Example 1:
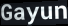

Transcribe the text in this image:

Gayun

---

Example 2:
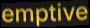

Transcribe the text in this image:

emptive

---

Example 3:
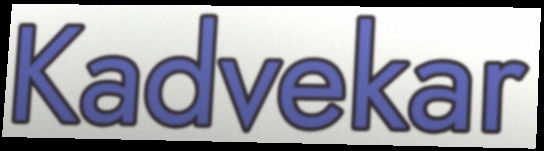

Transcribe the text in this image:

Kadvekar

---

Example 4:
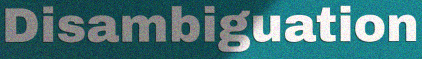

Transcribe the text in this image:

Disambiguation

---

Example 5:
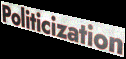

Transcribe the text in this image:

Politicization